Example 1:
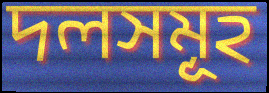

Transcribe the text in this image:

দলসমূহ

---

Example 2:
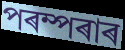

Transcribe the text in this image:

পৰম্পৰাৰ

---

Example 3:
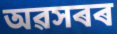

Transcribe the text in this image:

অৱসৰৰ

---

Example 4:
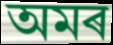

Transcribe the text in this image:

অমৰ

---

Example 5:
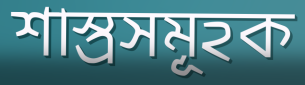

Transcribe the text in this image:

শাস্ত্ৰসমূহক